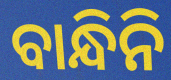
ବାନ୍ଧିନି